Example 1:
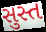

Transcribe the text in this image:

સુસ્ત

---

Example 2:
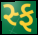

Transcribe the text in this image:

સ્ફ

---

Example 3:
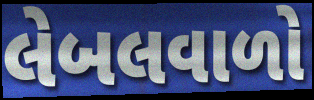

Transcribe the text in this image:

લેબલવાળો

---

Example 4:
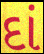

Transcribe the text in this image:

દાં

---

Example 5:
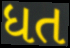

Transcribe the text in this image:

ધત